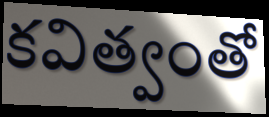
కవిత్వంతో